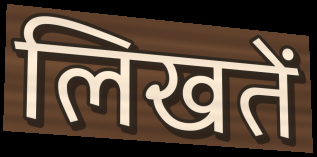
लिखतें